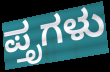
ಪ್ತೃಗಳು